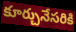
కూర్చునేసరికి